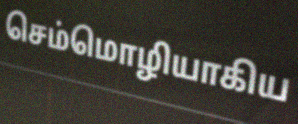
செம்மொழியாகிய